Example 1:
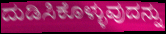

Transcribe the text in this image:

ದುಡಿಸಿಕೊಳ್ಳುವುದನ್ನು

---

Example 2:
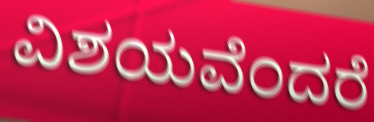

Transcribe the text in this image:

ವಿಶಯವೆಂದರೆ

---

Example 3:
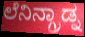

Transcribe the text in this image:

ಲೆನಿನ್ಗ್ರಾಡ್ನ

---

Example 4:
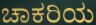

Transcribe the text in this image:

ಚಾಕರಿಯ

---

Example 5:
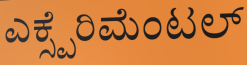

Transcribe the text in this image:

ಎಕ್ಸ್ಪೆರಿಮೆಂಟಲ್